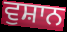
ਵੁਸ਼ਾਨ